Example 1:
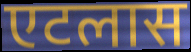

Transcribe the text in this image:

एटलास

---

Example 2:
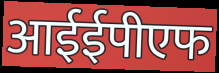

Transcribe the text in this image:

आईईपीएफ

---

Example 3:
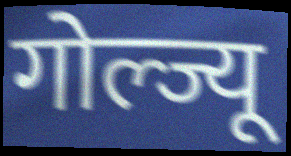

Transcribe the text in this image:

गोल्ज्यू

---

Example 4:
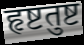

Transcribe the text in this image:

हृष्टतुष्ट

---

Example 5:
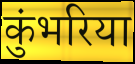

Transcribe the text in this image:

कुंभरिया